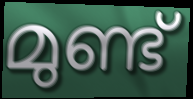
മുണ്ട്